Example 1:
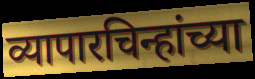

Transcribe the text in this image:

व्यापारचिन्हांच्या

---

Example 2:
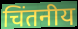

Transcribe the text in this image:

चिंतनीय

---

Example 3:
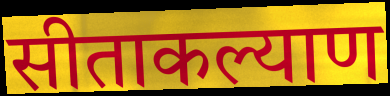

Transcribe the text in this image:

सीताकल्याण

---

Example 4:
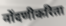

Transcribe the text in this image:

नोंदणीकरिता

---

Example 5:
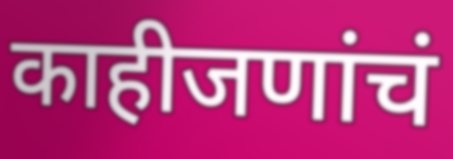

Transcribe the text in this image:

काहीजणांचं